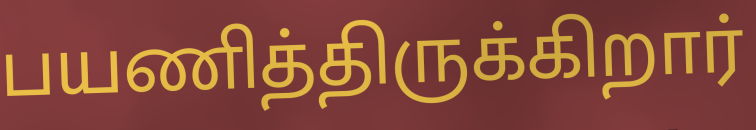
பயணித்திருக்கிறார்